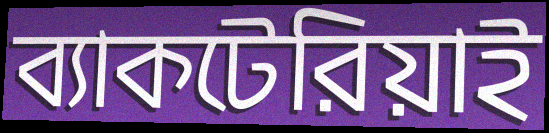
ব্যাকটেরিয়াই